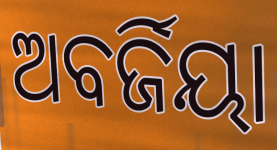
ଅବର୍ଜିୟା